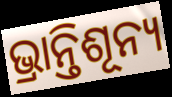
ଭ୍ରାନ୍ତିଶୂନ୍ୟ